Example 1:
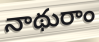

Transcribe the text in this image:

నాథురాం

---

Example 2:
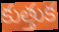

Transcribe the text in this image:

కుత్తుక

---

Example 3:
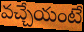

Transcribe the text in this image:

వచ్చేయంటే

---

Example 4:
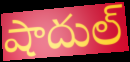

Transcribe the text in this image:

షాదుల్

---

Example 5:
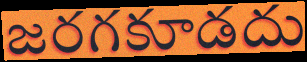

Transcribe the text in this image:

జరగకూడదు